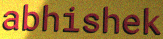
abhishek